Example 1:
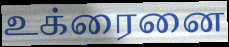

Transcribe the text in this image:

உக்ரைனை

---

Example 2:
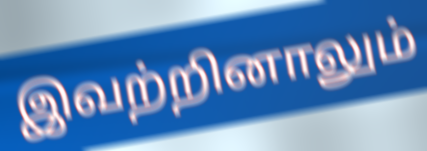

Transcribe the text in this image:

இவற்றினாலும்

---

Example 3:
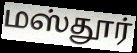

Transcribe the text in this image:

மஸ்தூர்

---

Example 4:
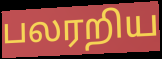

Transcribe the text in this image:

பலரறிய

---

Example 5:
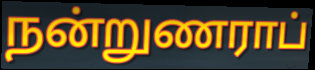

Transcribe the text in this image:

நன்றுணராப்